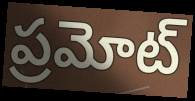
ప్రమోట్